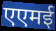
एएमई